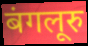
बंगलूरु